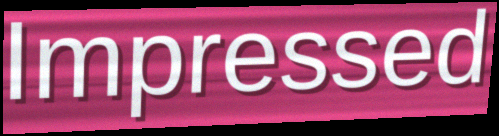
Impressed